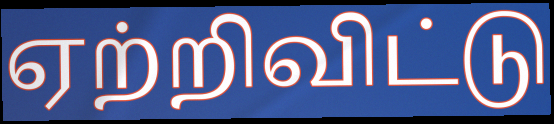
ஏற்றிவிட்டு